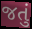
જતું